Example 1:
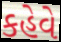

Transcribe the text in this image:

કહેવે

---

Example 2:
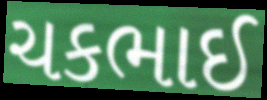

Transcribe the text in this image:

ચકભાઈ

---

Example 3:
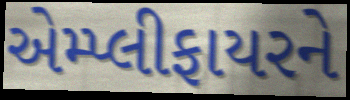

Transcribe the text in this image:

એમ્પ્લીફાયરને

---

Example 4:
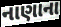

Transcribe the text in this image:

નાણાના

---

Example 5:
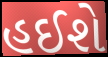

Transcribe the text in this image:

હઈશે